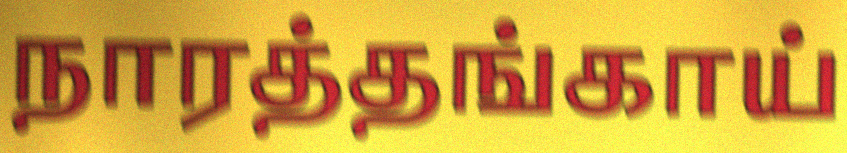
நாரத்தங்காய்